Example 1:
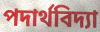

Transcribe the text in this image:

পদাৰ্থবিদ্যা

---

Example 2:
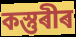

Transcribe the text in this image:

কস্তুৰীৰ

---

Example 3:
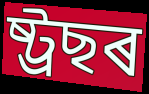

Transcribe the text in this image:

ষ্ট্ৰছৰ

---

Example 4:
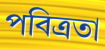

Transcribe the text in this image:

পবিত্ৰতা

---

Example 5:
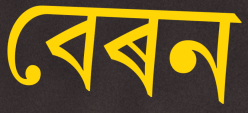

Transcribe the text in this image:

বেৰন